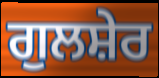
ਗੁਲਸ਼ੇਰ